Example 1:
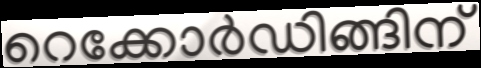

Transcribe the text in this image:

റെക്കോർഡിങ്ങിന്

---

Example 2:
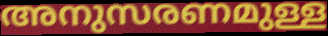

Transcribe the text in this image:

അനുസരണമുള്ള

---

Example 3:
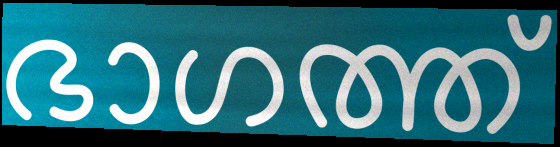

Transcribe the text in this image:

ഭാഗത്ത്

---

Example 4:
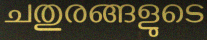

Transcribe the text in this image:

ചതുരങ്ങളുടെ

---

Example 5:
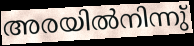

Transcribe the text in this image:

അരയിൽനിന്നു്